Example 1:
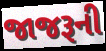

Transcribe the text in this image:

જાજરૂની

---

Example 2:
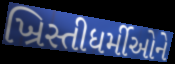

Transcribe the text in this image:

ખ્રિસ્તીધર્મીઓને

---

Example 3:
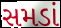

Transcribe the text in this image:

સમડાં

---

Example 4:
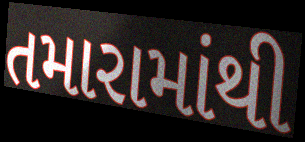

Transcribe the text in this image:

તમારામાંથી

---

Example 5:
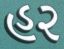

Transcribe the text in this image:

હર